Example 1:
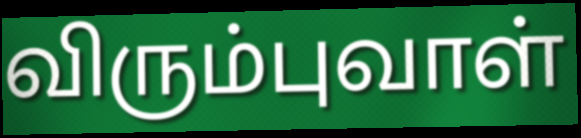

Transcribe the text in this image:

விரும்புவாள்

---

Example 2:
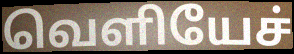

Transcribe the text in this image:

வெளியேச்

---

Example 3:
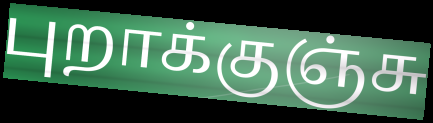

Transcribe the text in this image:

புறாக்குஞ்சு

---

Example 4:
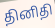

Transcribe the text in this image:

தினிதி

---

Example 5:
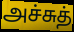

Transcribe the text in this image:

அச்சுத்